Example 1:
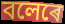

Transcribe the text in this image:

বলেৰে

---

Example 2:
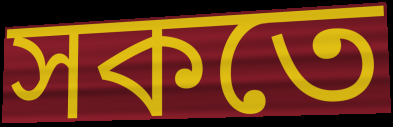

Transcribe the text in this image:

সকতে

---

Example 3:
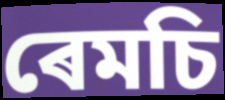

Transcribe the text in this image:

ৰেমচি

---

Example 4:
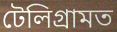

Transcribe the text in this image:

টেলিগ্ৰামত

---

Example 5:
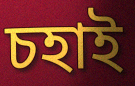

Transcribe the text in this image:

চহাই